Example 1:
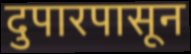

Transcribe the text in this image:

दुपारपासून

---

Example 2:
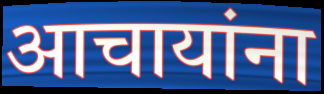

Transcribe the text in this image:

आचायांना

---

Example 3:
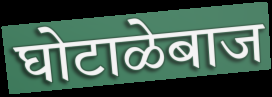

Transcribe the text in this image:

घोटाळेबाज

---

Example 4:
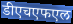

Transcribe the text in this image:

डीएचएफएल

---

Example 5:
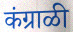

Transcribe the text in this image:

कंग्राळी